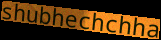
shubhechchha